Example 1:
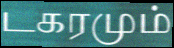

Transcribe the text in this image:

டகரமும்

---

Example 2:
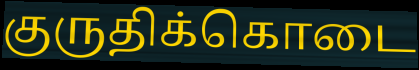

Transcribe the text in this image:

குருதிக்கொடை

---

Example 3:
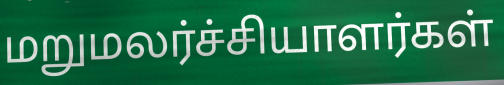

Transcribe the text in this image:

மறுமலர்ச்சியாளர்கள்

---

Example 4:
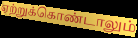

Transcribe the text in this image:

ஏற்றுக்கொண்டாலும்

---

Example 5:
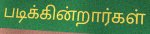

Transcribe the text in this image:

படிக்கின்றார்கள்